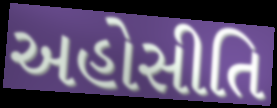
અહોસીતિ